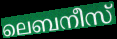
ലെബനീസ്